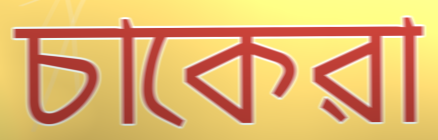
চাকেৱা